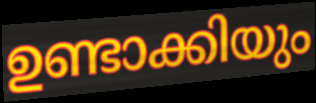
ഉണ്ടാക്കിയും